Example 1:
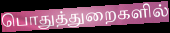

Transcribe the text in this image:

பொதுத்துறைகளில்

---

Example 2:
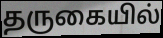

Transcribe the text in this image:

தருகையில்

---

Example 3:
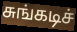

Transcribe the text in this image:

சுங்கடிச்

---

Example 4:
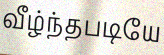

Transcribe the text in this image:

வீழ்ந்தபடியே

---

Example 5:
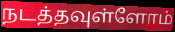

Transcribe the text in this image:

நடத்தவுள்ளோம்